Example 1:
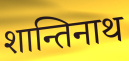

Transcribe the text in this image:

शान्तिनाथ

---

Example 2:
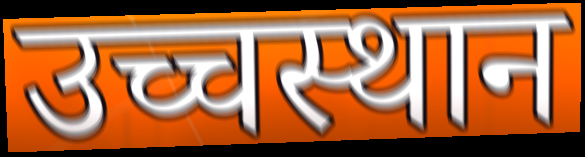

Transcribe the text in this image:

उच्चस्थान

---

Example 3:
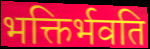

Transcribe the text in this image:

भक्तिर्भवति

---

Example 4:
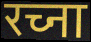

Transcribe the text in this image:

रच्ना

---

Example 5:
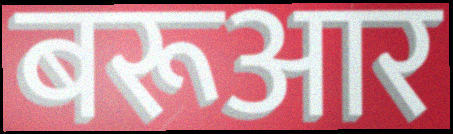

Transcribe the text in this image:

बरूआर